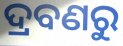
ଦ୍ରବଣରୁ